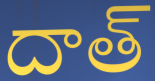
దాత్